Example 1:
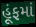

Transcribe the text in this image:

હૂંફમાં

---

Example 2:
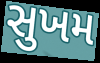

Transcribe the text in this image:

સુખમ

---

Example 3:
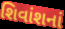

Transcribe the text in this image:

શિવાંશનાં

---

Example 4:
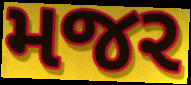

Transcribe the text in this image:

મજર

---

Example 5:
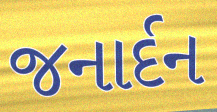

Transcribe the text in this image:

જનાર્દન